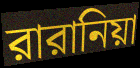
রারানিয়া